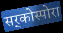
सर्कोस्पोरा